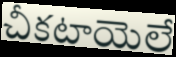
చీకటాయెలే